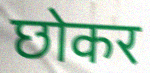
छोकर